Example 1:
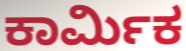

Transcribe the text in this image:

ಕಾರ್ಮಿಕ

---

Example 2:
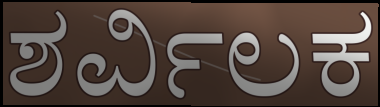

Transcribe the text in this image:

ಶರ್ವಿಲಕ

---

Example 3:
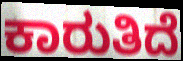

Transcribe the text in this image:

ಕಾರುತಿದೆ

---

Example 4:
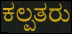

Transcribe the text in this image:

ಕಲ್ಪತರು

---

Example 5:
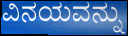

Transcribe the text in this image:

ವಿನಯವನ್ನು